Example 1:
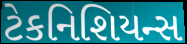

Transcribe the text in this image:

ટેકનિશિયન્સ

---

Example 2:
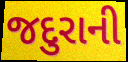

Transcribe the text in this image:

જદુરાની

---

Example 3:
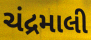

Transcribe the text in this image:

ચંદ્રમાલી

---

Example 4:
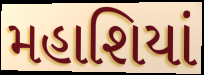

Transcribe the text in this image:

મહાશિયાં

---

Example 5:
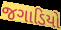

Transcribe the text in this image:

જગાડિયો